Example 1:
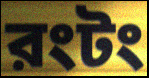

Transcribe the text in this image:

রংটং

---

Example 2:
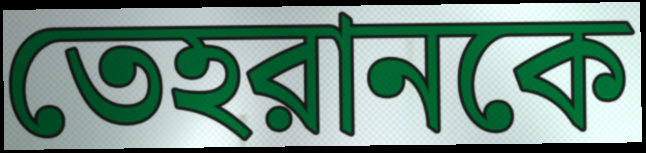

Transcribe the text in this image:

তেহরানকে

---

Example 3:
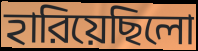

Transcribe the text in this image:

হারিয়েছিলো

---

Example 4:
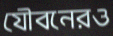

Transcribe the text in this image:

যৌবনেরও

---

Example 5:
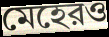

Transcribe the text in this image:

মেহেরও